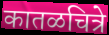
कातळचित्रे